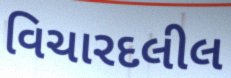
વિચારદલીલ